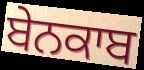
ਬੇਨਕਾਬ